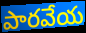
పారవేయ